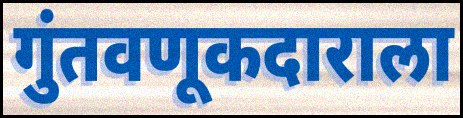
गुंतवणूकदाराला